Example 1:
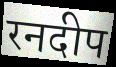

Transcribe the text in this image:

रनदीप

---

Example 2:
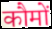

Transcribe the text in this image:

कौमों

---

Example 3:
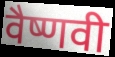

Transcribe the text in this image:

वैष्णवी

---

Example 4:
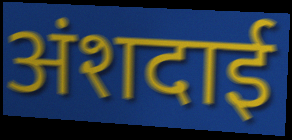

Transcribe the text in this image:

अंशदाई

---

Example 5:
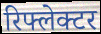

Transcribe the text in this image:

रिफ्लेक्टर